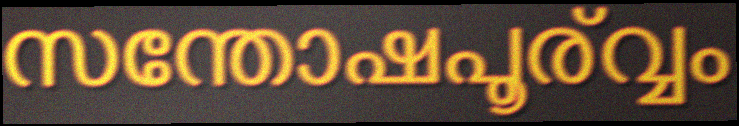
സന്തോഷപൂര്വ്വം